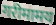
गरीमामय